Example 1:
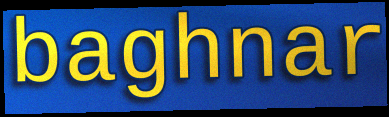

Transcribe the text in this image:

baghnar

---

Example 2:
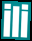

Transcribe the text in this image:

ili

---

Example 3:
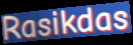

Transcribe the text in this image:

Rasikdas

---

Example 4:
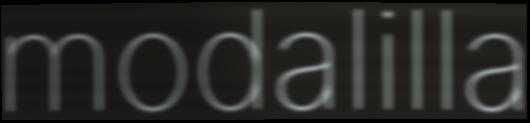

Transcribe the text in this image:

modalilla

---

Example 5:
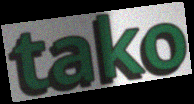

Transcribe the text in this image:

tako